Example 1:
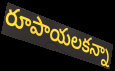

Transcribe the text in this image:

రూపాయలకన్నా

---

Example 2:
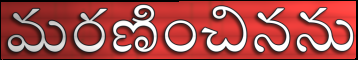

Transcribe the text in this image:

మరణించినను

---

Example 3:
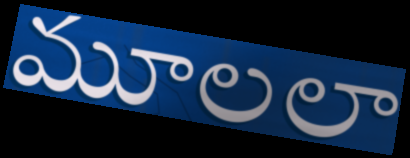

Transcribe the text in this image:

మూలలా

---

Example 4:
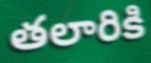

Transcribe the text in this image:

తలారికి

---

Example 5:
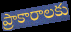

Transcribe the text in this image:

ప్రాకారాలకు